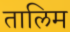
तालिम